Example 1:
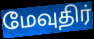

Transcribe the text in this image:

மேவுதிர்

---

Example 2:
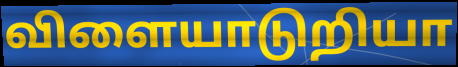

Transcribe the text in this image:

விளையாடுறியா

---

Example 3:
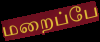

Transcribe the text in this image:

மறைப்பே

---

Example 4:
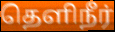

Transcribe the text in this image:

தெளிநீர்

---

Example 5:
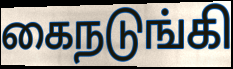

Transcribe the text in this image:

கைநடுங்கி